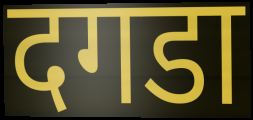
दगडा